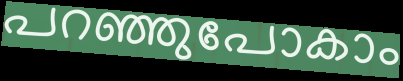
പറഞ്ഞുപോകാം